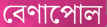
বেণাপোল